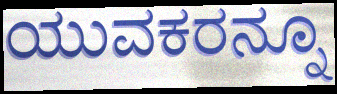
ಯುವಕರನ್ನೂ